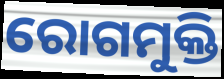
ରୋଗମୁକ୍ତି